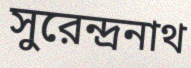
সুরেন্দ্রনাথ